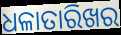
ଧଳାତାରିଖର